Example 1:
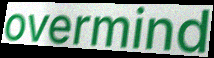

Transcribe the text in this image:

overmind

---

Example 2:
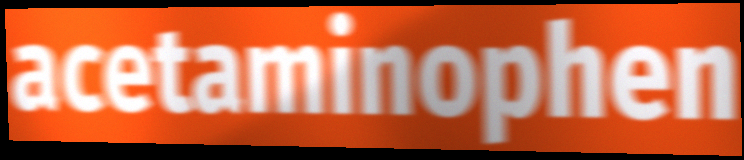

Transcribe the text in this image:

acetaminophen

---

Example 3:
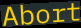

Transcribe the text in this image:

Abort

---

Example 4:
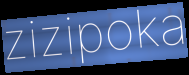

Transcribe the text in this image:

zizipoka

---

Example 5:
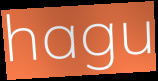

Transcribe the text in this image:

hagu